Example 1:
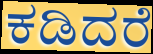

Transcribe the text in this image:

ಕಡಿದರೆ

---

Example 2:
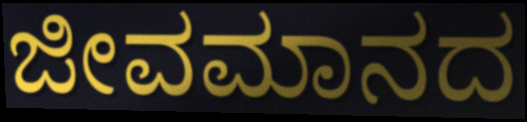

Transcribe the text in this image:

ಜೀವಮಾನದ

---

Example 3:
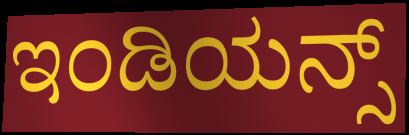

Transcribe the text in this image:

ಇಂಡಿಯನ್ಸ್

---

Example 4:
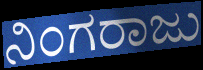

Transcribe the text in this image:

ನಿಂಗರಾಜು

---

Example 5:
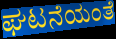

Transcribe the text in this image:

ಘಟನೆಯಂತೆ